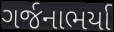
ગર્જનાભર્યા